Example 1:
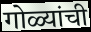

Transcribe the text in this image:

गोळ्यांची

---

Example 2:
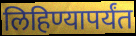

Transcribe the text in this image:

लिहिण्यापर्यंत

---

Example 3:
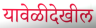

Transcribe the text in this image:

यावेळीदेखील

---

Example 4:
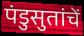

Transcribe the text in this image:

पंडुसुतांचें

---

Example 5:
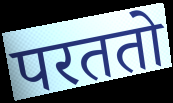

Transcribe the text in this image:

परततो